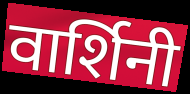
वार्शिनी